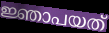
ജ്ഞാപയത്